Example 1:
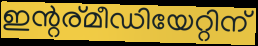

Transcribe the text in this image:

ഇന്റര്മീഡിയേറ്റിന്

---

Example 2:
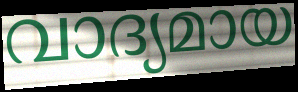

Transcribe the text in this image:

വാദ്യമായ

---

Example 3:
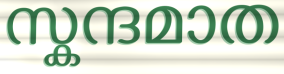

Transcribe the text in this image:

സ്കന്ദമാത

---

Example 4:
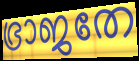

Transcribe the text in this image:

ഭ്രാജതേ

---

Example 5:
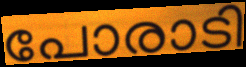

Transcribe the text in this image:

പോരാടി